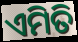
ଏମିତି